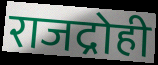
राजद्रोही